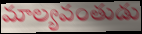
మాల్యవంతుడు